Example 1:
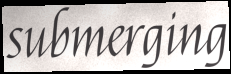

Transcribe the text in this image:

submerging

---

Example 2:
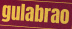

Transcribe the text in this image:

gulabrao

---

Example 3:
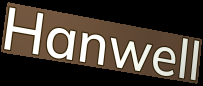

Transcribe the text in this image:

Hanwell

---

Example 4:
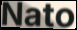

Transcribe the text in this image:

Nato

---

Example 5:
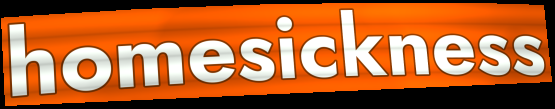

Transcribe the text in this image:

homesickness